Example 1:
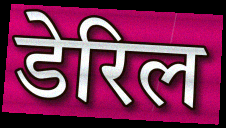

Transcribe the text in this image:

डेरिल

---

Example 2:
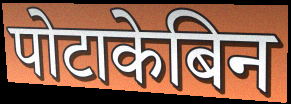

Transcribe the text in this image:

पोटाकेबिन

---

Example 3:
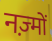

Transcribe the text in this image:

नज़्मों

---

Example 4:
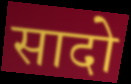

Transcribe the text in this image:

सादो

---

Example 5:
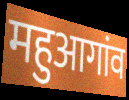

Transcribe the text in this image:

महुआगांव